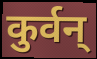
कुर्वन्